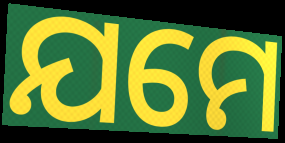
ଯମେ